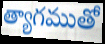
త్యాగముతో